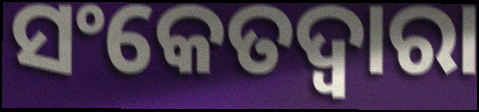
ସଂକେତଦ୍ୱାରା